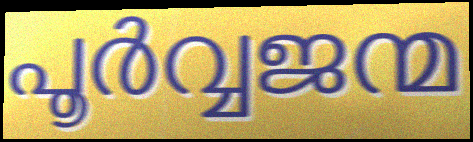
പൂർവ്വജന്മ